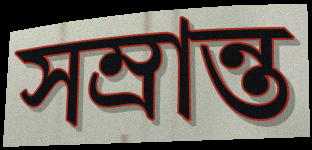
সম্রান্ত